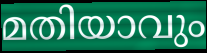
മതിയാവും